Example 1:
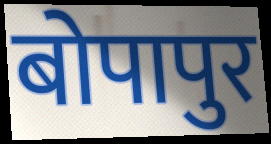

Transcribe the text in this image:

बोपापुर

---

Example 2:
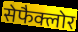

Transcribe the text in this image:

सेफैक्लोर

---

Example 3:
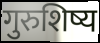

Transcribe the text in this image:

गुरुशिष्य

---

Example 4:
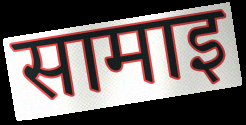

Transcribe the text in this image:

सामाइ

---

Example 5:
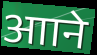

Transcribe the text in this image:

आाने